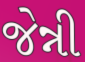
જેન્ની